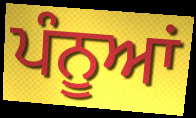
ਪੰਨੂਆਂ